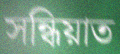
সন্ধিয়াত